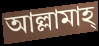
আল্লামাহ্